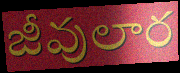
జీవులార